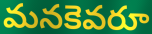
మనకెవరూ